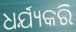
ଧର୍ଯ୍ୟକରି